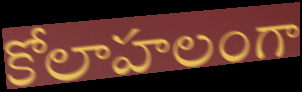
కోలాహలంగా